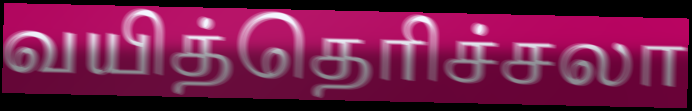
வயித்தெரிச்சலா